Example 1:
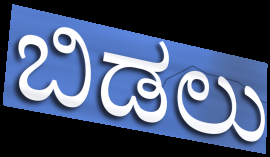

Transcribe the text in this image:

ಬಿಡಲು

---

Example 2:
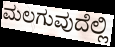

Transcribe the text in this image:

ಮಲಗುವುದೆಲ್ಲಿ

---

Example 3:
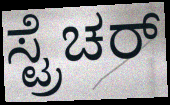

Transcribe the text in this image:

ಸ್ಟ್ರೆಚರ್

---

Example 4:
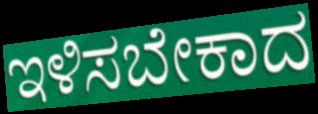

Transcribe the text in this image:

ಇಳಿಸಬೇಕಾದ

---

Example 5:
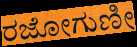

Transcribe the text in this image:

ರಜೋಗುಣೀ